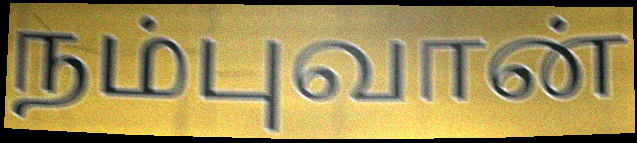
நம்புவான்